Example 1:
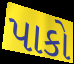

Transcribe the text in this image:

પાકો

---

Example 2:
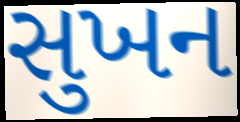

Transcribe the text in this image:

સુખન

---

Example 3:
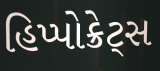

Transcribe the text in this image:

હિપ્પોક્રેટ્સ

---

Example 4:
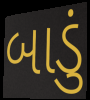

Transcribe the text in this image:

બાડું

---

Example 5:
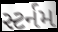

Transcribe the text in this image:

સ્ટર્નમ